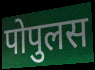
पोपुलस